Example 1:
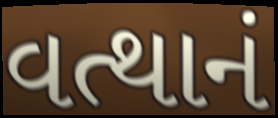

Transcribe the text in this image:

વત્થાનં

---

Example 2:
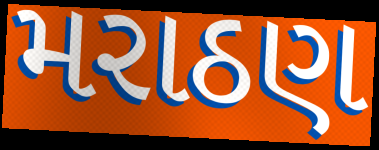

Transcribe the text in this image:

મરાઠણ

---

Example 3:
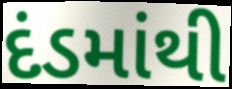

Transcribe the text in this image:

દંડમાંથી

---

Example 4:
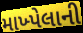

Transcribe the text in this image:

માખ્પેલાની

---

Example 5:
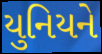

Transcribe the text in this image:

યુનિયને